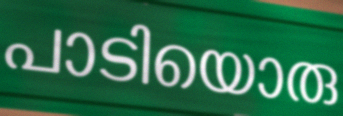
പാടിയൊരു